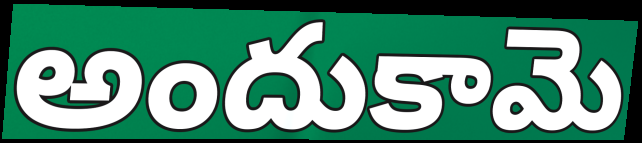
అందుకామె